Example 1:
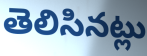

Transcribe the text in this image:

తెలిసినట్లు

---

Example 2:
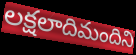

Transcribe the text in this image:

లక్షలాదిమందిని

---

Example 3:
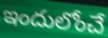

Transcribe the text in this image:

ఇందులోంచే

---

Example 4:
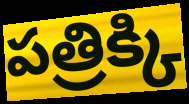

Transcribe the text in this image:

పత్రిక్కి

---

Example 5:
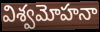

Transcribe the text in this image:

విశ్వమోహనా